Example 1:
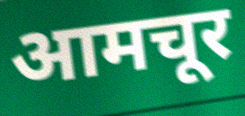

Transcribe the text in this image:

आमचूर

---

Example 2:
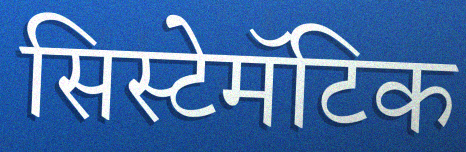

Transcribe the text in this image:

सिस्टेमॅटिक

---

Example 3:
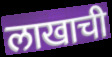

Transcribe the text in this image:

लाखाची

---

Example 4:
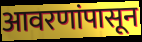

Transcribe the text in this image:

आवरणांपासून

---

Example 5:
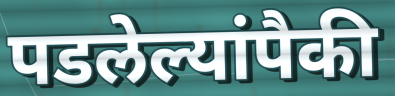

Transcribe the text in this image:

पडलेल्यांपैकी